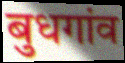
बुधगांव